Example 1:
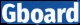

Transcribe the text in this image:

Gboard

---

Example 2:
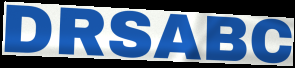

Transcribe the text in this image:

DRSABC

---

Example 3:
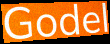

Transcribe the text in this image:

Godel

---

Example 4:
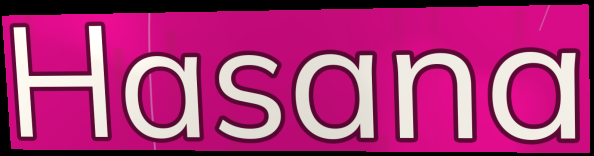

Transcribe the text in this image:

Hasana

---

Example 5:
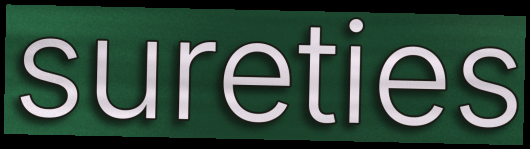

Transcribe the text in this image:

sureties